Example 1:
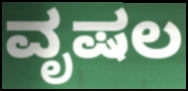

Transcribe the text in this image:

ವೃಷಲ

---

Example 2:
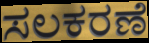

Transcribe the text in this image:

ಸಲಕರಣೆ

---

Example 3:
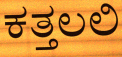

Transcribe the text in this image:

ಕತ್ತಲಲಿ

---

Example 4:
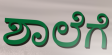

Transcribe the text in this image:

ಶಾಲೆಗೆ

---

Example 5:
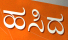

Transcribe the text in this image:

ಹಸಿದ